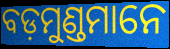
ବଡ଼ମୁଣ୍ଡମାନେ